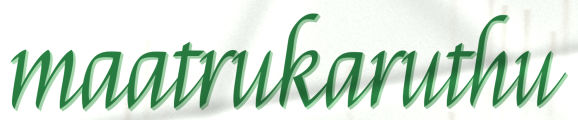
maatrukaruthu